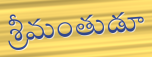
శ్రీమంతుడూ